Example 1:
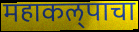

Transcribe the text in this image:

महाकल्पाचा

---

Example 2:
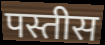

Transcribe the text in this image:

पस्तीस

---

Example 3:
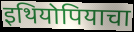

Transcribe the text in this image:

इथियोपियाचा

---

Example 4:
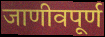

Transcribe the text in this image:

जाणीवपूर्ण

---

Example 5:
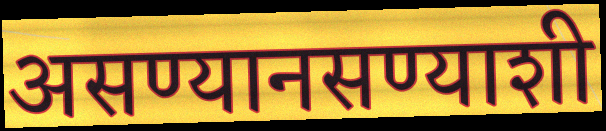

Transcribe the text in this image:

असण्यानसण्याशी